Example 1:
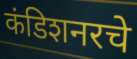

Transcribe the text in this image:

कंडिशनरचे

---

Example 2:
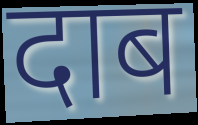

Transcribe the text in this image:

दाब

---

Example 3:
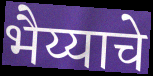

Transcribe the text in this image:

भैय्याचे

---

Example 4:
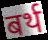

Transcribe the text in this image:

बर्थ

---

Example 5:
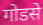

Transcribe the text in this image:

गोडसे